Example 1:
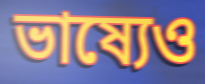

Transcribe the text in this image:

ভাষ্যেও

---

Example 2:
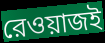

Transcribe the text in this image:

রেওয়াজই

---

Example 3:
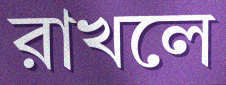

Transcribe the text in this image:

রাখলে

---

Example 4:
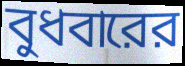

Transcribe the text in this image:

বুধবারের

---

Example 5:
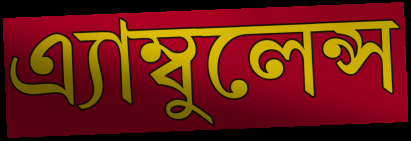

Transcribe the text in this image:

এ্যাম্বুলেন্স